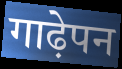
गाढ़ेपन